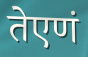
तेएणं